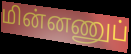
மின்னணுப்